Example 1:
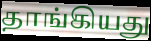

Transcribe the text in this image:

தாங்கியது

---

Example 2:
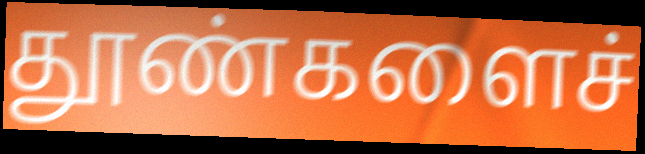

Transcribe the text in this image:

தூண்களைச்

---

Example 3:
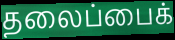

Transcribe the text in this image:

தலைப்பைக்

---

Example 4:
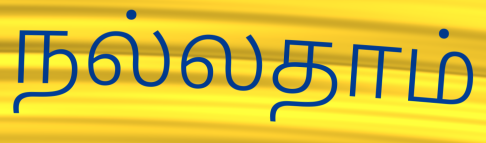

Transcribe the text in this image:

நல்லதாம்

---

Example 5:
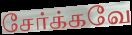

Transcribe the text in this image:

சேர்க்கவே